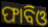
ଫାବିଓ